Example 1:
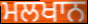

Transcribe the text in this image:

ਮਲਖਾਨ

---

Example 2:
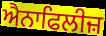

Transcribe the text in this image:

ਐਨਾਫਿਲੀਜ਼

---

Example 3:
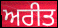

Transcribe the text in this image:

ਅਰੀਤ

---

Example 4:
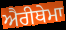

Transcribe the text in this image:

ਐਰੀਥੇਮਾ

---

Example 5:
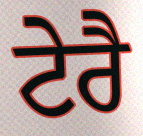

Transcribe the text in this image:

ਟੇਰੈ